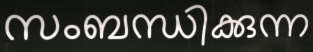
സംബന്ധിക്കുന്ന